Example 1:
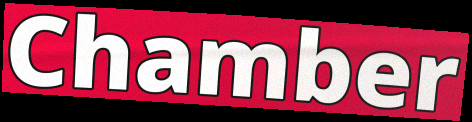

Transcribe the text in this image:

Chamber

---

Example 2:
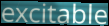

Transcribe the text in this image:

excitable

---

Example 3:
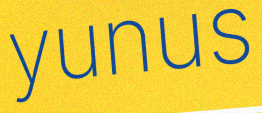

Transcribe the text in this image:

yunus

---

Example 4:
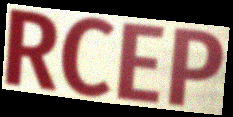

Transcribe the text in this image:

RCEP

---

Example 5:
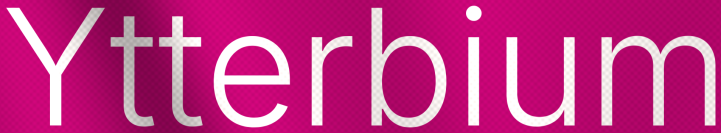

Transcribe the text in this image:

Ytterbium